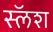
स्लॅश